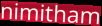
nimitham